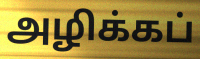
அழிக்கப்